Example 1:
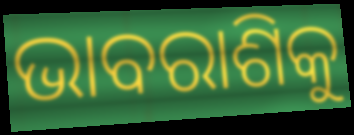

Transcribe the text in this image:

ଭାବରାଶିକୁ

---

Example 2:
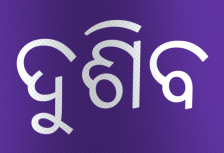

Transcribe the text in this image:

ଦୁଶିବ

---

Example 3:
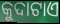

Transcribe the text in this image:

କୁଦାଟାଏ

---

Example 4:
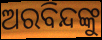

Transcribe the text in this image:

ଅରବିନ୍ଦଙ୍କୁ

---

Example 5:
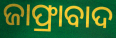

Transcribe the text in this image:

ଜାଫ୍ରାବାଦ